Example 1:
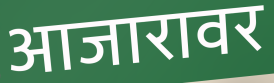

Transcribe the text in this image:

आजारावर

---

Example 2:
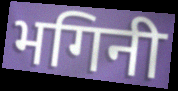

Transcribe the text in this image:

भगिनी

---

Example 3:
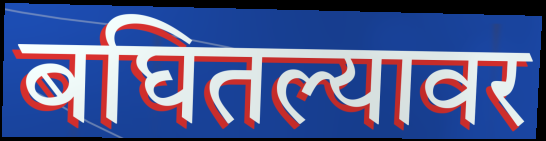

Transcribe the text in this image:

बघितल्यावर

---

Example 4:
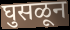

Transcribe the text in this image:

घुसळून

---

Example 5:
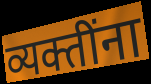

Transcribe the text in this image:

व्यक्‍तींना